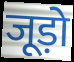
जूड़ो